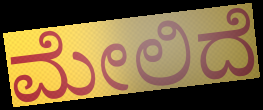
ಮೇಲಿದೆ